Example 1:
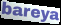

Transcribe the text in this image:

bareya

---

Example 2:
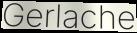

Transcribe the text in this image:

Gerlache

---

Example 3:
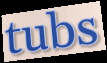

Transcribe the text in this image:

tubs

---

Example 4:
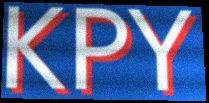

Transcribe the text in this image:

KPY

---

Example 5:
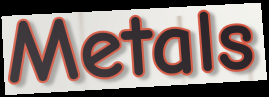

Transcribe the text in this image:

Metals